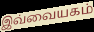
இவ்வையகம்